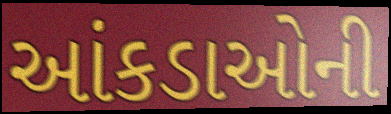
આંકડાઓની